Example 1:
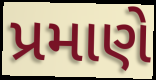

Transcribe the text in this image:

પ્રમાણે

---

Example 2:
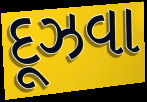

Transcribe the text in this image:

દૂઝવા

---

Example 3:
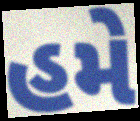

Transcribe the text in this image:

હમે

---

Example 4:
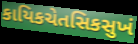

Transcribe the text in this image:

કાયિકચેતસિકસુખં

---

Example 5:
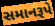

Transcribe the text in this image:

સમાનરૂપે